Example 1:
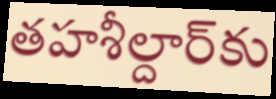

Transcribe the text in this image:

తహశీల్దార్‌కు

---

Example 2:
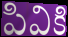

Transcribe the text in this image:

పివికి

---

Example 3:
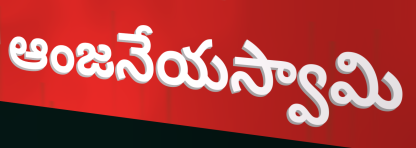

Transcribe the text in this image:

ఆంజనేయస్వామి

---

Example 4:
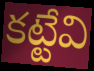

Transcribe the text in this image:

కట్టేవి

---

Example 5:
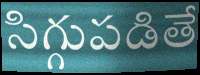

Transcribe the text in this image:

సిగ్గుపడితే